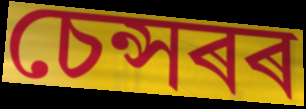
চেন্সৰৰ